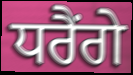
ਧਰੈਂਗੇ